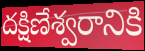
దక్షిణేశ్వరానికి